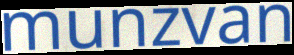
munzvan